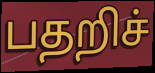
பதறிச்